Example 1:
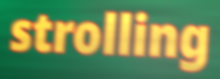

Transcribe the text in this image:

strolling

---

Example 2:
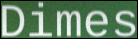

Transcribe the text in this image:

Dimes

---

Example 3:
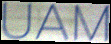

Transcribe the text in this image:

UAM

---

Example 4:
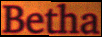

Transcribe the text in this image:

Betha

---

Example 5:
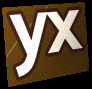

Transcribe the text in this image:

yx